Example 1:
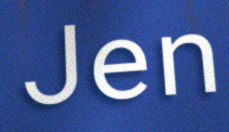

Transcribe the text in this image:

Jen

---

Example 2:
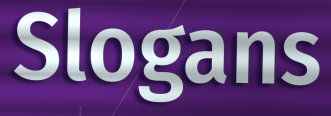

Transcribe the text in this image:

Slogans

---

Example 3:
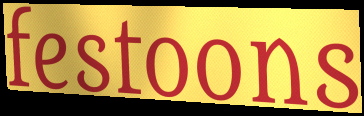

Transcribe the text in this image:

festoons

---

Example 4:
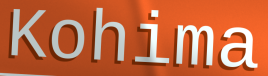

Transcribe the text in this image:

Kohima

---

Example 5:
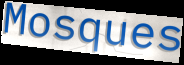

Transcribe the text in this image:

Mosques